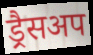
ड्रैसअप